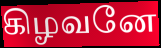
கிழவனே